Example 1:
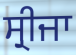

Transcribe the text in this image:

ਸ੍ਰੀਜਾ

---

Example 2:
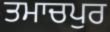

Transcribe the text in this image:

ਤਮਾਚਪੁਰ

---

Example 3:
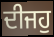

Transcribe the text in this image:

ਦੀਜਹੁ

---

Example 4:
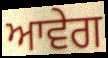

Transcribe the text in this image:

ਆਵੇਗ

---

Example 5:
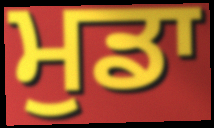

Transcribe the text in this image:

ਮੁਡਾ